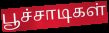
பூச்சாடிகள்